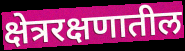
क्षेत्ररक्षणातील